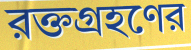
রক্তগ্রহণের